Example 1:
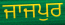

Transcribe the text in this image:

ਜਾਜਪੁਰ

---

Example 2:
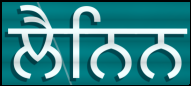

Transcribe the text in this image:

ਲੈਨਿਨ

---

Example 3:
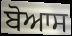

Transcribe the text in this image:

ਬੋਆਸ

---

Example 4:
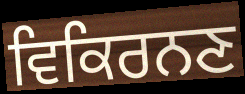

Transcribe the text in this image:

ਵਿਕਿਰਨਣ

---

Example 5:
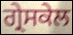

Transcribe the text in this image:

ਗ੍ਰੇਸਕੇਲ